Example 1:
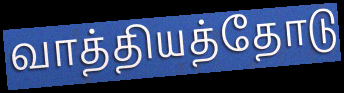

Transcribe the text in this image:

வாத்தியத்தோடு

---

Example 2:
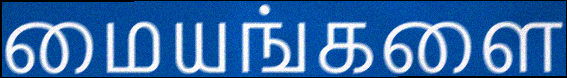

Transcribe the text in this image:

மையங்களை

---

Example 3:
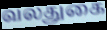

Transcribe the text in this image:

வலதுகை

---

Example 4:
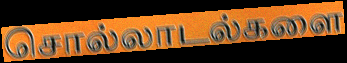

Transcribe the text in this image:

சொல்லாடல்களை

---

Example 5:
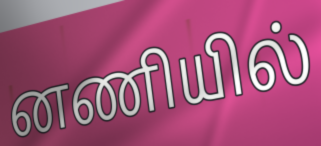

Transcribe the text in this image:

னணியில்